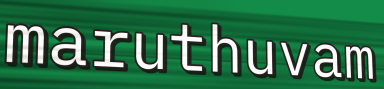
maruthuvam